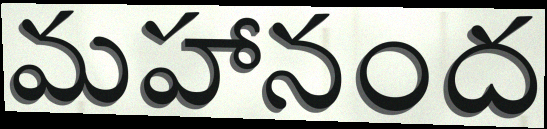
మహానంద